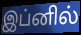
இப்னில்